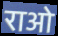
राओ